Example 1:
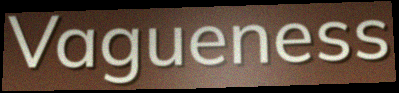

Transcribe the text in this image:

Vagueness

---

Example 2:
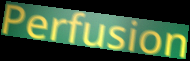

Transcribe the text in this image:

Perfusion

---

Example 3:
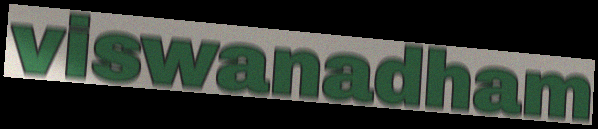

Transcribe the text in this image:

viswanadham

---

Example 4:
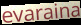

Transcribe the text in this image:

evaraina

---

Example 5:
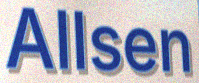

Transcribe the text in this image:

Allsen